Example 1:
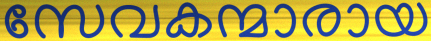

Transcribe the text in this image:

സേവകന്മാരായ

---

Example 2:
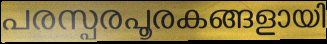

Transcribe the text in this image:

പരസ്പരപൂരകങ്ങളായി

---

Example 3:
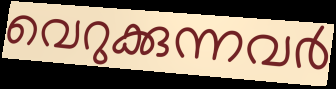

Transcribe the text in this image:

വെറുക്കുന്നവർ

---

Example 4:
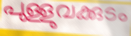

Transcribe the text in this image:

പുള്ളുവക്കുടം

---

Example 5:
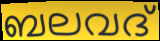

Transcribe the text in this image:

ബലവദ്